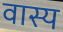
वास्य